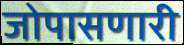
जोपासणारी